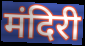
मंदिरी